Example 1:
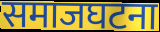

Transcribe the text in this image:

समाजघटना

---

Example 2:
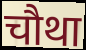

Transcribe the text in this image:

चौथा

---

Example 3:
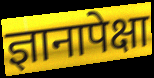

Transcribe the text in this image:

ज्ञानापेक्षा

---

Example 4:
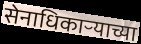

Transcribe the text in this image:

सेनाधिकाऱ्याच्या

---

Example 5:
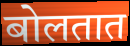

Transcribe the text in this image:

बोलतात